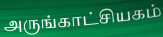
அருங்காட்சியகம்